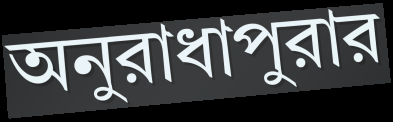
অনুরাধাপুরার